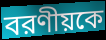
বরণীয়কে